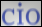
cio